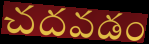
చదవడం